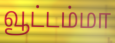
வூட்டம்மா